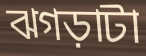
ঝগড়াটা